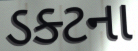
ડક્ટના